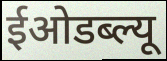
ईओडब्ल्यू